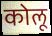
कोलू